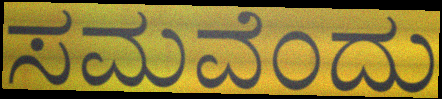
ಸಮವೆಂದು